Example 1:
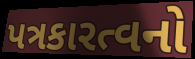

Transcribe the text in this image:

પત્રકારત્વનો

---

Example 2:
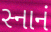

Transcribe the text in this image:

સ્નાનં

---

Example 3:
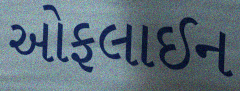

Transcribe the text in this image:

ઓફલાઈન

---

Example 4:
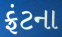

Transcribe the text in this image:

ફ્રંટના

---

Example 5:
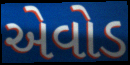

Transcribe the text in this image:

એવોડ